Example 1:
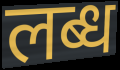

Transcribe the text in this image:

लब्ध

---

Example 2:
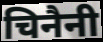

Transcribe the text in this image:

चिनैनी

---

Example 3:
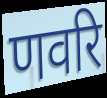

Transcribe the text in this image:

णवरि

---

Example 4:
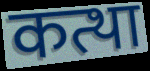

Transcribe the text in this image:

कत्था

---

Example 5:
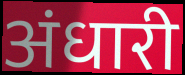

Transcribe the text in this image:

अंधारी